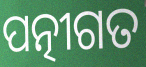
ପତ୍ନୀଗତ